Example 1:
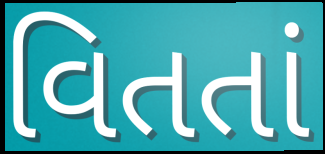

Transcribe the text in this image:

વિતતાં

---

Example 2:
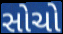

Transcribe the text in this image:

સોચો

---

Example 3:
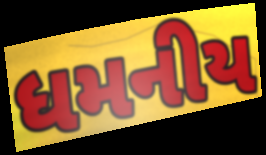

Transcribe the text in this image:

ધમનીય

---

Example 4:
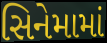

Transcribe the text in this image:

સિનેમામાં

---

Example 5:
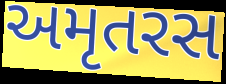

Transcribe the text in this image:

અમૃતરસ